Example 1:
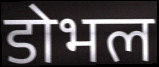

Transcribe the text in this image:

डोभल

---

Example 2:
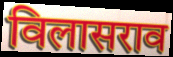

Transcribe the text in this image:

विलासराव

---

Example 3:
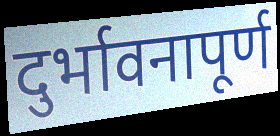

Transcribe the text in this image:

दुर्भावनापूर्ण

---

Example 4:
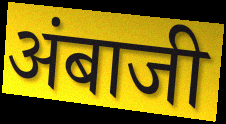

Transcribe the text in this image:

अंबाजी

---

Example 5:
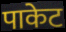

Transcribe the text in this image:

पाकेट